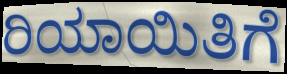
ರಿಯಾಯಿತಿಗೆ